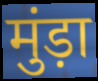
मुंड़ा